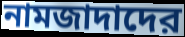
নামজাদাদের